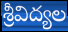
శ్రీవిద్యల